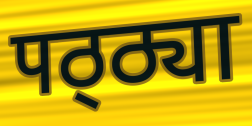
पठ्ठ्या